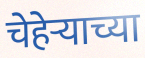
चेहेऱ्याच्या